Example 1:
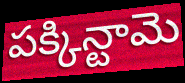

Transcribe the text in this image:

పక్కిన్టామె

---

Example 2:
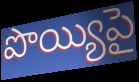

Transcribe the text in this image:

పొయ్యిపై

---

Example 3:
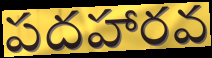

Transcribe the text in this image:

పదహారవ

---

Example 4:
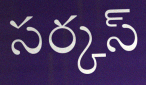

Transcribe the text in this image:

సర్కస్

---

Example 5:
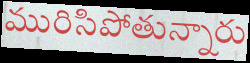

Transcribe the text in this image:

మురిసిపోతున్నారు